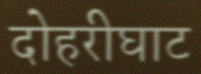
दोहरीघाट